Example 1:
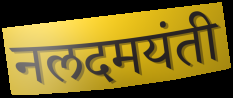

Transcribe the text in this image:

नलदमयंती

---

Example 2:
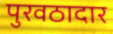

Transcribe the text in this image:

पुरवठादार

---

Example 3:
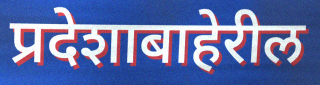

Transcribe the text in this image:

प्रदेशाबाहेरील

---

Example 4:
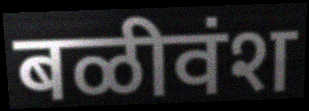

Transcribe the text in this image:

बळीवंश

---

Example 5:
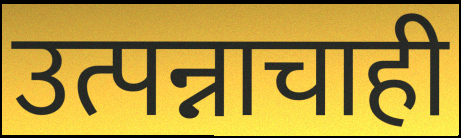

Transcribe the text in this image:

उत्पन्नाचाही